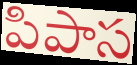
పిపాస